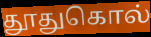
தூதுகொல்